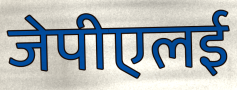
जेपीएलई